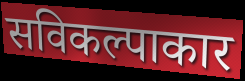
सविकल्पाकार